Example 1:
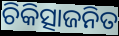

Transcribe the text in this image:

ଚିକିତ୍ସାଜନିତ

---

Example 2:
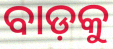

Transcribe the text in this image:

ବାଡ଼କୁ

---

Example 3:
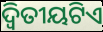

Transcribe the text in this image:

ଦ୍ୱିତୀୟଟିଏ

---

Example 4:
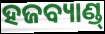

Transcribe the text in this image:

ହଜବ୍ୟାଣ୍ଡ୍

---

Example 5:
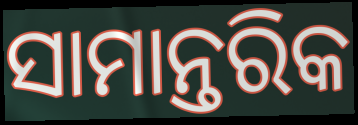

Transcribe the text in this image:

ସାମାନ୍ତରିକ